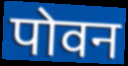
पोवन